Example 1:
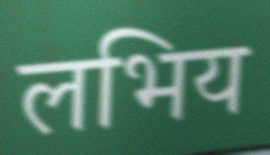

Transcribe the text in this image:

लभिय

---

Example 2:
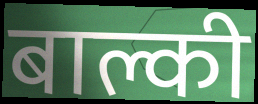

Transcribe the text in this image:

बाल्की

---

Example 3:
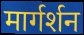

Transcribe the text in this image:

मार्गर्शन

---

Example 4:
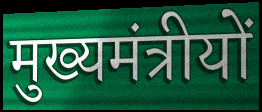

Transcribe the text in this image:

मुख्यमंत्रीयों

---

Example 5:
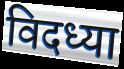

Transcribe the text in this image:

विदध्या